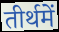
तीर्थमें